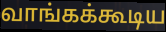
வாங்கக்கூடிய